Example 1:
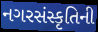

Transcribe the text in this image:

નગરસંસ્કૃતિની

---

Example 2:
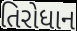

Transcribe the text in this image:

તિરોધાન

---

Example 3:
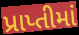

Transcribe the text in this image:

પ્રાપ્તીમાં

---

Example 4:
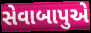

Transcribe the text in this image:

સેવાબાપુએ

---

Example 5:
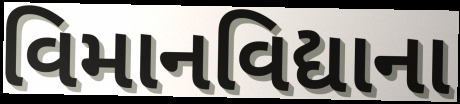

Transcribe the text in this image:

વિમાનવિદ્યાના